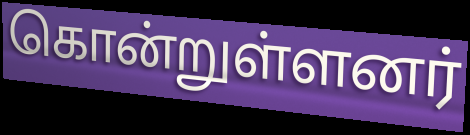
கொன்றுள்ளனர்